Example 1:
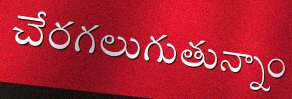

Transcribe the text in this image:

చేరగలుగుతున్నాం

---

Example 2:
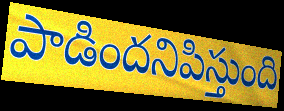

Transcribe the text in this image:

పాడిందనిపిస్తుంది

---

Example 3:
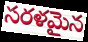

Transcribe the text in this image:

సరళమైన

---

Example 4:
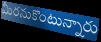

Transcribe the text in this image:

మీరనుకొంటున్నారు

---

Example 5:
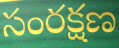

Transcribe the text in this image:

సంరక్షణ